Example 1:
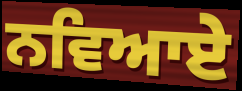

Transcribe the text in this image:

ਨਵਿਆਏ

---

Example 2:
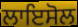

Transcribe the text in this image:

ਲਾਇਸੋਲ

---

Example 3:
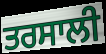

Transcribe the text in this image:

ਤਰਸਾਲੀ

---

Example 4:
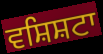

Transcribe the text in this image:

ਵਸ਼ਿਸ਼ਟਾ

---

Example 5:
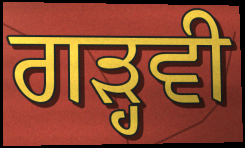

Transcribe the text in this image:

ਗੜ੍ਹਵੀ